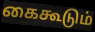
கைகூடும்